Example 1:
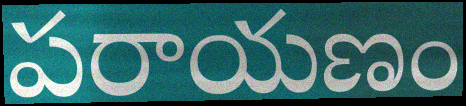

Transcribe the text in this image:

పరాయణం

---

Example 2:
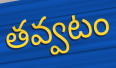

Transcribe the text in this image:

తవ్వటం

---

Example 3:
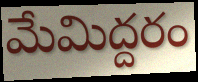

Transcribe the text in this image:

మేమిద్దరం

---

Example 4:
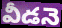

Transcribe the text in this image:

వీడనె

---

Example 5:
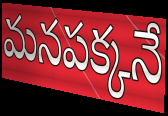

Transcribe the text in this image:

మనపక్కనే